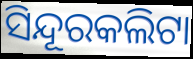
ସିନ୍ଦୂରକଲିଟା